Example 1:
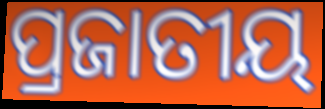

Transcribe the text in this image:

ପ୍ରଜାତୀୟ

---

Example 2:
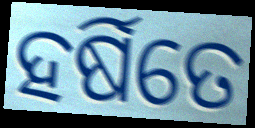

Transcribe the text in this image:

ହର୍ଷିତେ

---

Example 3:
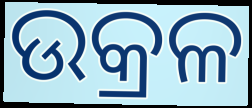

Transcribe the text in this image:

ଉକ୍ରଳ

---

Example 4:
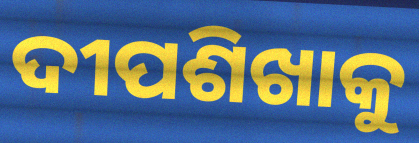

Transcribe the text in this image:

ଦୀପଶିଖାକୁ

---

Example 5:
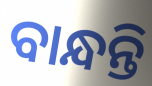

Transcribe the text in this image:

ବାନ୍ଧନ୍ତି